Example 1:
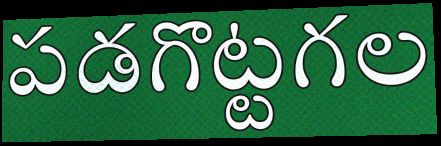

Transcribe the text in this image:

పడగొట్టగల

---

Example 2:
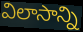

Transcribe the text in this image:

విలాసాన్ని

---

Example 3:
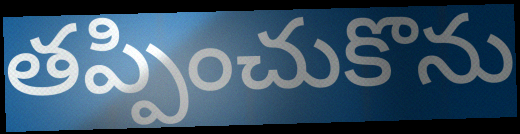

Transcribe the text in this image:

తప్పించుకొను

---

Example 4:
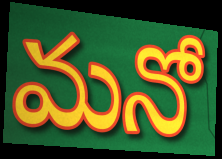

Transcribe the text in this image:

మనో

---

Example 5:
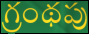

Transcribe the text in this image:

గ్రంథపు